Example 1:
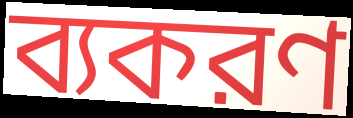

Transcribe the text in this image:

ব্যকরণ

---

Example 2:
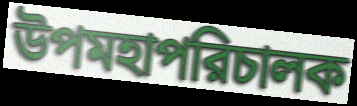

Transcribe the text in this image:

উপমহাপরিচালক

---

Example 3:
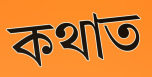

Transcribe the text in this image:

কথাত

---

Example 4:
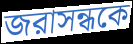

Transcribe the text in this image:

জরাসন্ধকে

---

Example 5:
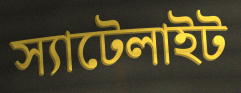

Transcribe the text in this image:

স্যাটেলাইট